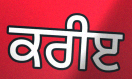
ਕਰੀੲ